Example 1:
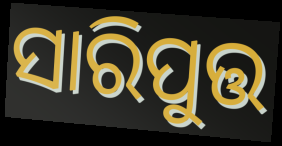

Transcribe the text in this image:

ସାରିପୁତ୍ତ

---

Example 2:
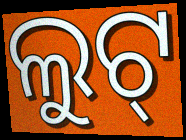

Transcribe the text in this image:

ଲୁଟ୍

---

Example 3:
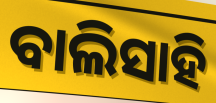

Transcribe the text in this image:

ବାଲିସାହି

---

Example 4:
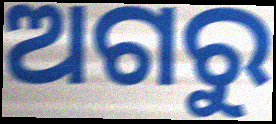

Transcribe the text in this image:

ଅଗରୁ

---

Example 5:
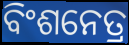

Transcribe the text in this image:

ବିଂଶନେତ୍ର